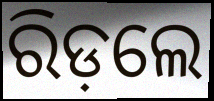
ରିଡ଼ଲେ